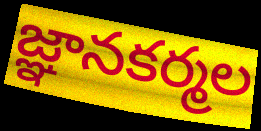
జ్ఞానకర్మల